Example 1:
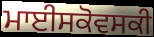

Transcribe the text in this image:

ਮਾਈਸਕੋਵਸਕੀ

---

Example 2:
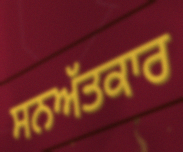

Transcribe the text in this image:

ਸਨਅੱਤਕਾਰ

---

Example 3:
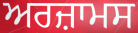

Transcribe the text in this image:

ਅਰਜ਼ਾਮਸ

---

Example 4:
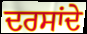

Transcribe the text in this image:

ਦਰਸਾਂਦੇ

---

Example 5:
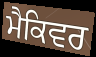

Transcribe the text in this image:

ਮੈਕਿਵਰ